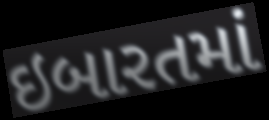
ઇબારતમાં